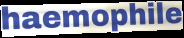
haemophile